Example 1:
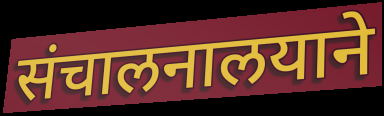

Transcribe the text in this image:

संचालनालयाने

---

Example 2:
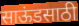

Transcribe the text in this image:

साऊंडसाठी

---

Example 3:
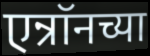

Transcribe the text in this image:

एन्रॉनच्या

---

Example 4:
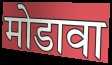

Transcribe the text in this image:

मोडावा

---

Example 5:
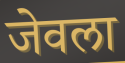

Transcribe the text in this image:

जेवला